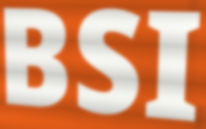
BSI